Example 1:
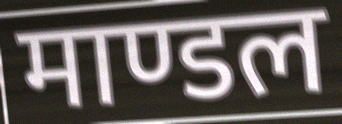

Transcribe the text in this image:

माण्डल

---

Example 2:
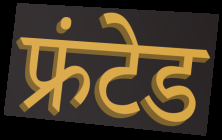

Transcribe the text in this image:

फ्रंटेड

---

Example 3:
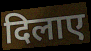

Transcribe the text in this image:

दिलाए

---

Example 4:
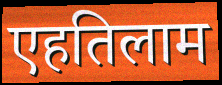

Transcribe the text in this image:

एहतिलाम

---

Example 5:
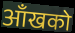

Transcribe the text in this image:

आँखको